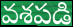
వశపడి